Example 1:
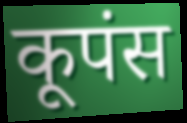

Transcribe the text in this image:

कूपंस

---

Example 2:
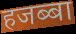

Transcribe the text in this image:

हजब्बा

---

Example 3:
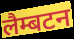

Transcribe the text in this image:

लैम्बटन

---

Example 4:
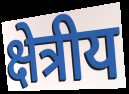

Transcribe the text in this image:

क्षेत्रीय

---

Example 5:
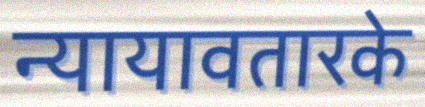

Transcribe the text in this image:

न्यायावतारके